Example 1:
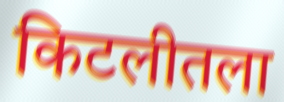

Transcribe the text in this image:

किटलीतला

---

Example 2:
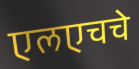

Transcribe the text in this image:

एलएचचे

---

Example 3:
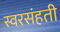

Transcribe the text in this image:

स्वरसंहती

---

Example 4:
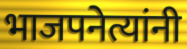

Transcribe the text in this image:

भाजपनेत्यांनी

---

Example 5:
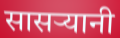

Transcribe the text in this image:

सासऱ्यानी